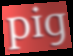
pig